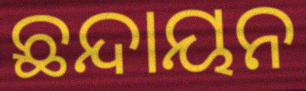
ଛନ୍ଦାୟନ